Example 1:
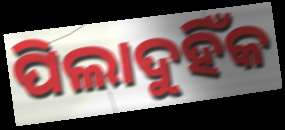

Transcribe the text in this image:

ପିଲାଦୁହିଁକ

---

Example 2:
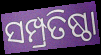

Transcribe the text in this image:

ସମ୍ପ୍ରତିଷ୍ଠା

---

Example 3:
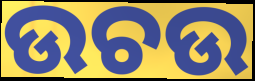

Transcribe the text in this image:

ଉଚଉ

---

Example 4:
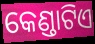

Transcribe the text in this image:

କେଣ୍ଡାଟିଏ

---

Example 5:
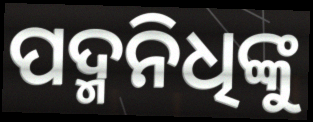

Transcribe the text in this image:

ପଦ୍ମନିଧିଙ୍କୁ